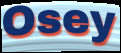
Osey